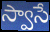
స్వాసే